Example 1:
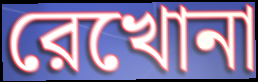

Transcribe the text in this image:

রেখোনা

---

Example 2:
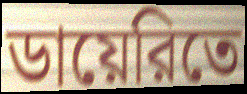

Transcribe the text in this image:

ডায়েরিতে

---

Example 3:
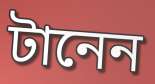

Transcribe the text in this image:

টানেন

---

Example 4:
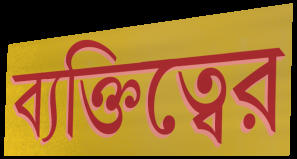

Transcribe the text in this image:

ব্যক্তিত্বের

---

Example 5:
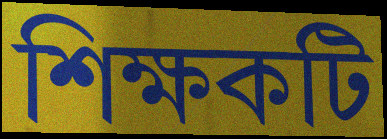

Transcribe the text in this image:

শিক্ষকটি